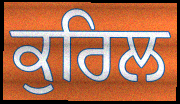
ਕੁਰਿਲ